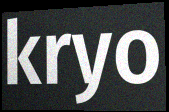
kryo